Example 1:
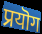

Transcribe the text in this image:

प्रयॊग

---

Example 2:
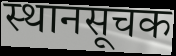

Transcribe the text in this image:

स्थानसूचक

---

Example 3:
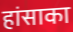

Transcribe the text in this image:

हांसाका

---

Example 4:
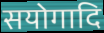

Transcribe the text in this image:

सयोगादि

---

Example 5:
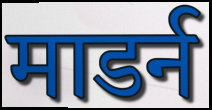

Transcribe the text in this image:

माडर्न